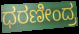
ಧರಣೀಂದ್ರ